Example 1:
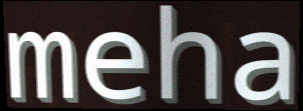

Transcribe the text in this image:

meha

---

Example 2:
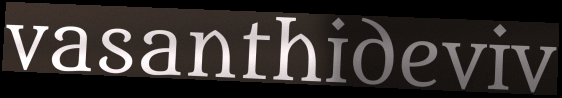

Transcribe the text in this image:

vasanthideviv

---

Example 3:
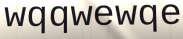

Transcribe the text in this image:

wqqwewqe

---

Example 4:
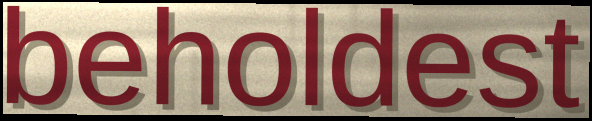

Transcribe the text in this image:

beholdest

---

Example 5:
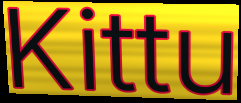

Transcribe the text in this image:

Kittu